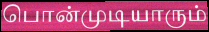
பொன்முடியாரும்